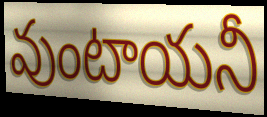
వుంటాయనీ